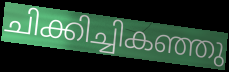
ചിക്കിച്ചികഞ്ഞു